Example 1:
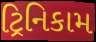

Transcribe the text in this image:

ટ્રિનિકામ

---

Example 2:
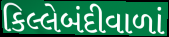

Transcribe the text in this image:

કિલ્લેબંદીવાળાં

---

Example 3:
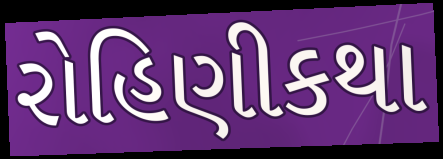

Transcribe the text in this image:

રોહિણીકથા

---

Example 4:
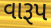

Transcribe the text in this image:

વારૂપ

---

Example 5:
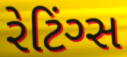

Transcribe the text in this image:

રેટિંગ્સ